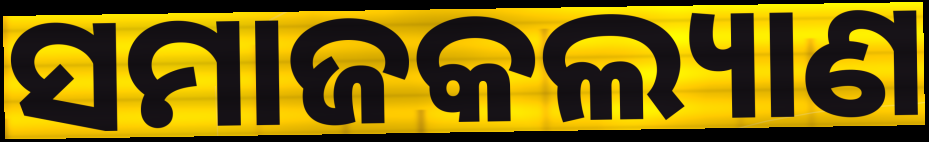
ସମାଜକଲ୍ୟାଣ